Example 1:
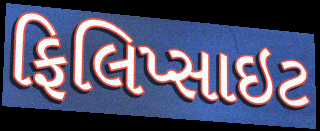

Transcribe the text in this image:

ફિલિપ્સાઇટ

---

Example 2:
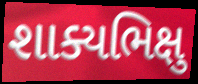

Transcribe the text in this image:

શાક્યભિક્ષુ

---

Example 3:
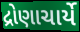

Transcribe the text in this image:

દ્રોણાચાર્યે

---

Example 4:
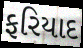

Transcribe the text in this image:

ફરિયાદ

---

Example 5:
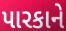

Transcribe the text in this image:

પારકાને